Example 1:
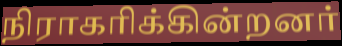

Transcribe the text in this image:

நிராகரிக்கின்றனர்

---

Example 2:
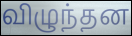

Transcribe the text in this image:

விழுந்தன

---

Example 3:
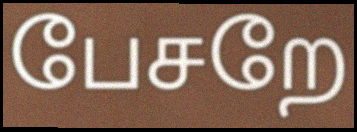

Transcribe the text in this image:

பேசறே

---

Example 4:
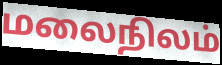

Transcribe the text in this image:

மலைநிலம்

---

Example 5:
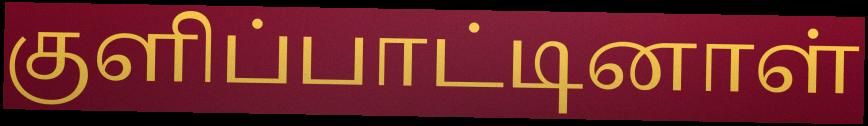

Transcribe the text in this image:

குளிப்பாட்டினாள்